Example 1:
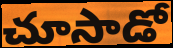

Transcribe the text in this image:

చూసాడో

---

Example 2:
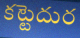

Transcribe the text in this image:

కట్టెదుర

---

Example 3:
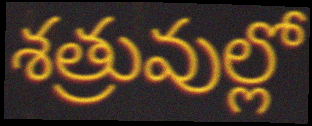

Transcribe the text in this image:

శత్రువుల్లో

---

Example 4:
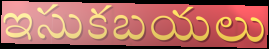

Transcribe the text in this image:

ఇసుకబయలు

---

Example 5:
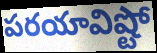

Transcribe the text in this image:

పరయావిష్టో